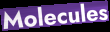
Molecules